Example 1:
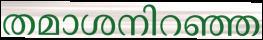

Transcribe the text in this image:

തമാശനിറഞ്ഞ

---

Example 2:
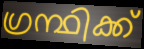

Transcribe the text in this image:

ഗ്രന്ഥിക്ക്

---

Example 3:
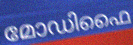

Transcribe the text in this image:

മോഡിഫൈ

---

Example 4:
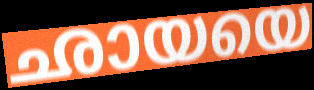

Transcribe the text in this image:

ഛായയെ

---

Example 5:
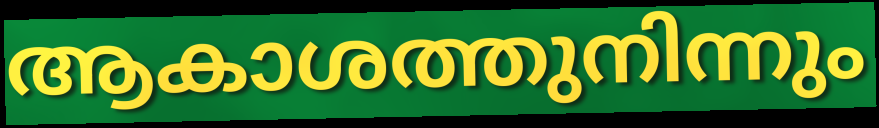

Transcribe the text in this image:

ആകാശത്തുനിന്നും